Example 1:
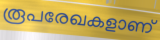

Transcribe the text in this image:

രൂപരേഖകളാണ്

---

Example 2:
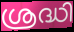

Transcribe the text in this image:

ശ്രദ്ധി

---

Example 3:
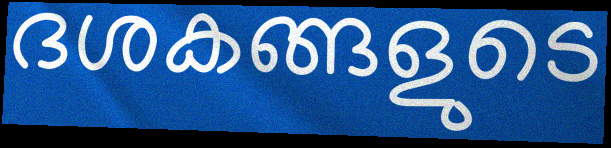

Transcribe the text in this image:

ദശകങ്ങളുടെ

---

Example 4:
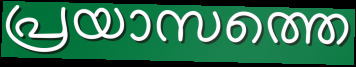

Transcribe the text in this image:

പ്രയാസത്തെ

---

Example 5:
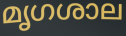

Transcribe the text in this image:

മൃഗശാല